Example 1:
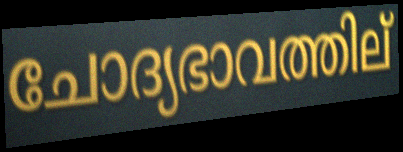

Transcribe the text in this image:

ചോദ്യഭാവത്തില്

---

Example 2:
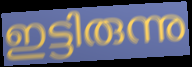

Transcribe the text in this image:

ഇട്ടിരുന്നു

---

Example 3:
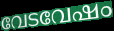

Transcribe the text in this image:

വേടവേഷം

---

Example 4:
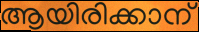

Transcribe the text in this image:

ആയിരിക്കാന്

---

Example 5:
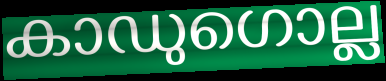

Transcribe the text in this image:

കാഡുഗൊല്ല